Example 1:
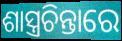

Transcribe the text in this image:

ଶାସ୍ତ୍ରଚିନ୍ତାରେ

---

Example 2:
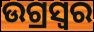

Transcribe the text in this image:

ଉଗ୍ରସ୍ୱର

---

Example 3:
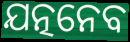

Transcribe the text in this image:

ଯତ୍ନନେବ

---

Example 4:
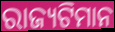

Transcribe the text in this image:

ରାଜ୍ୟଟିମାନ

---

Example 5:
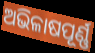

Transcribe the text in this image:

ଅଭିଳାଷପୂର୍ଣ୍ଣ